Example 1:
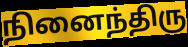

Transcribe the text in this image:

நினைந்திரு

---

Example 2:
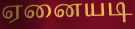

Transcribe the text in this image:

ஏனையடி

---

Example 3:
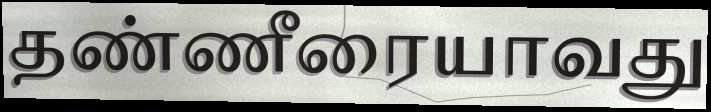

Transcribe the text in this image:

தண்ணீரையாவது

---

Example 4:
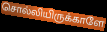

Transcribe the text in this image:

சொல்லியிருக்காளே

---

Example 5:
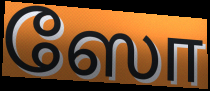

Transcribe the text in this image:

ஸோ